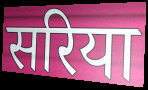
सरिया